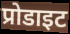
प्रोडाइट